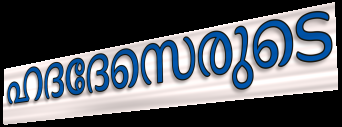
ഹദദേസെരുടെ